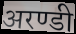
अरण्डी